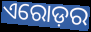
ଏରୋଡ଼ର